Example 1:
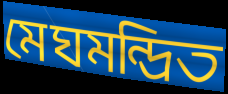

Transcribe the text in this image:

মেঘমন্দ্রিত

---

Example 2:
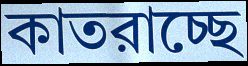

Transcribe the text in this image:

কাতরাচ্ছে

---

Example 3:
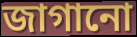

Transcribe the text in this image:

জাগানো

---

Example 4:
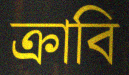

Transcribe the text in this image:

ক্রাবি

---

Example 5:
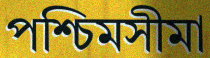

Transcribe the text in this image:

পশ্চিমসীমা